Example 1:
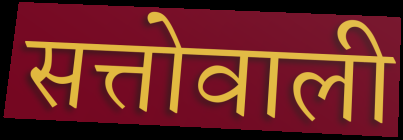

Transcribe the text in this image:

सत्तोवाली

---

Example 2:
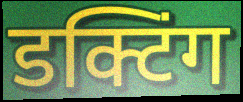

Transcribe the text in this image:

डक्टिंग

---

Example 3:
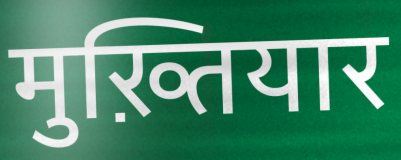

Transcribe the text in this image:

मुख़्तियार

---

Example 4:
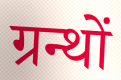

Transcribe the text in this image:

ग्रन्थों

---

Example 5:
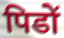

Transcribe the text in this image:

पिडों